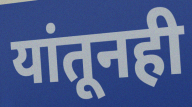
यांतूनही